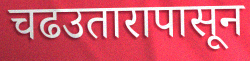
चढउतारापासून